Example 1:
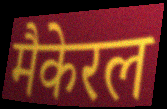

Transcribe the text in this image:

मैकेरल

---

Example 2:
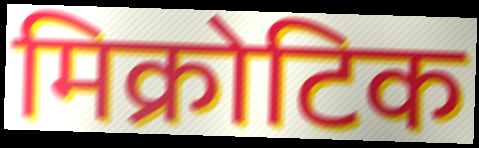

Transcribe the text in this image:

मिक्रोटिक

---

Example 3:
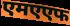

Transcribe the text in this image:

एमएएफ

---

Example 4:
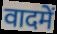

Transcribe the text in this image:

वादमें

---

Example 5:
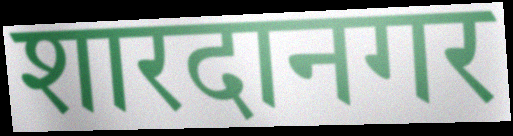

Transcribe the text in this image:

शारदानगर